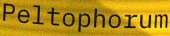
Peltophorum